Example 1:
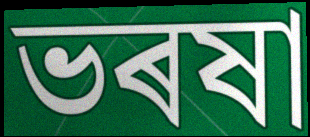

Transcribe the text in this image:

ভৰষা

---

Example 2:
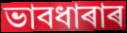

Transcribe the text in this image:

ভাবধাৰাৰ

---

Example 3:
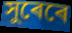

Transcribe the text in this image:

সুৰেৰে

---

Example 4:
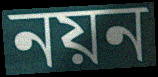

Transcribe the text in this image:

নয়ন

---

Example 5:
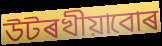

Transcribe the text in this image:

উটৰখীয়াবোৰ